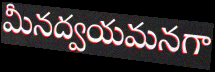
మీనద్వయమనగా